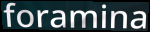
foramina